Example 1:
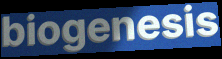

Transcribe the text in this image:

biogenesis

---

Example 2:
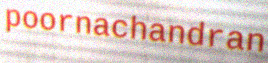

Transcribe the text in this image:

poornachandran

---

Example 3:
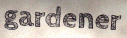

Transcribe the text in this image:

gardener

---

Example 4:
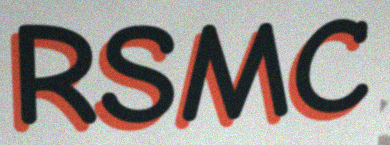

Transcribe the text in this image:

RSMC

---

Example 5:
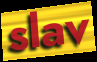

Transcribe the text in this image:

slav